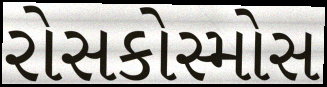
રોસકોસ્મોસ